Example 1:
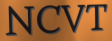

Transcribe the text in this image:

NCVT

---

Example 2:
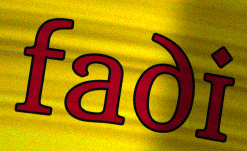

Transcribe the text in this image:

fadi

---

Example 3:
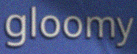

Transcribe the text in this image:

gloomy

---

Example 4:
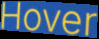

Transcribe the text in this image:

Hover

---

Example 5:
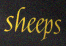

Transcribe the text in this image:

sheeps